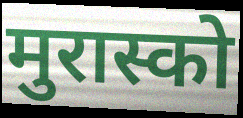
मुरास्को